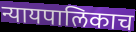
न्यायपालिकाच